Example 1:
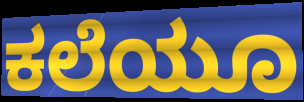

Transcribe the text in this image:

ಕಲೆಯೂ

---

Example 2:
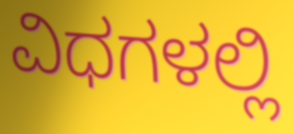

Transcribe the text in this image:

ವಿಧಗಳಲ್ಲಿ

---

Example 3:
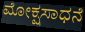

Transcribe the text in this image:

ಮೋಕ್ಷಸಾಧನೆ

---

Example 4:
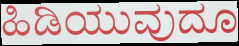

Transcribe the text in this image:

ಹಿಡಿಯುವುದೂ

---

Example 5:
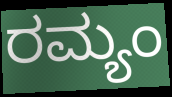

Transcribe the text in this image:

ರಮ್ಯಂ